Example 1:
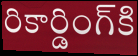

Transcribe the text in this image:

రికార్డింగ్‌కి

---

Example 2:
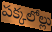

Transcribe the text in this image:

పక్కలోల్లు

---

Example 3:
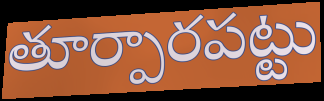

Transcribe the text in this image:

తూర్పారపట్టు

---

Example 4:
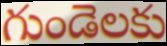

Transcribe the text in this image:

గుండెలకు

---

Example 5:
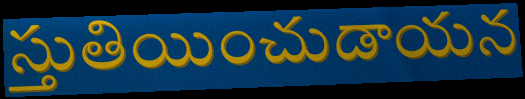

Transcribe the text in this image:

స్తుతియించుడాయన